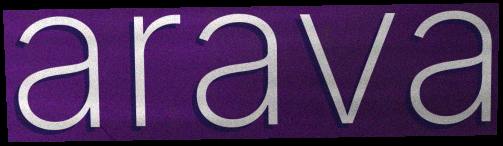
arava